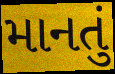
માનતું